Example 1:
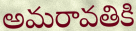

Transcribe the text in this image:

అమరావతికి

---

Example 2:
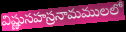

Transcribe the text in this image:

విష్ణుసహస్రనామములలో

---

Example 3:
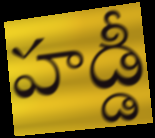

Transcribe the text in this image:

హడ్డీ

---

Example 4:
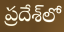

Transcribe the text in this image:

ప్రదేశ్‌లో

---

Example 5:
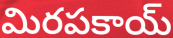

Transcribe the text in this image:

మిరపకాయ్